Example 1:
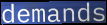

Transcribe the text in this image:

demands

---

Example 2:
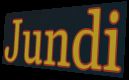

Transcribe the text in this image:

Jundi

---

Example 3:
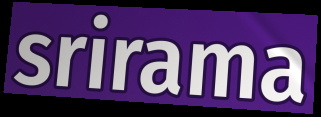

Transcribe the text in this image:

srirama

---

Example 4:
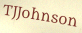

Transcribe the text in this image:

TJJohnson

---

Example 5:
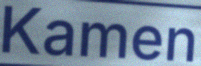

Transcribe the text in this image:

Kamen